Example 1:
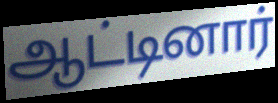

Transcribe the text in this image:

ஆட்டினார்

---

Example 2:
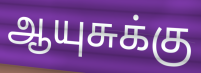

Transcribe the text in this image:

ஆயுசுக்கு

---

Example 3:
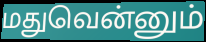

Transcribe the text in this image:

மதுவென்னும்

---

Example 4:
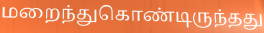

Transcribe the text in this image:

மறைந்துகொண்டிருந்தது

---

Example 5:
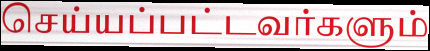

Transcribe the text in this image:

செய்யப்பட்டவர்களும்